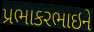
પ્રભાકરભાઇને